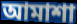
আমাশা